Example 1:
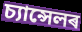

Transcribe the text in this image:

চ্যান্সেলৰ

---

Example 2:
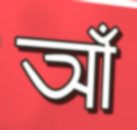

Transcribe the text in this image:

আঁ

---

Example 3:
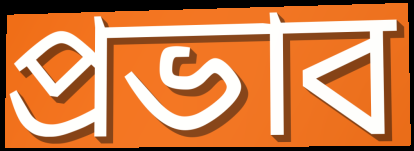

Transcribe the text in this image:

প্ৰভাব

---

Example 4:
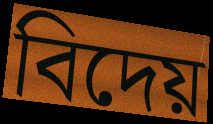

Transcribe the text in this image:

বিদেয়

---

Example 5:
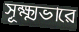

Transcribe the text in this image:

সূক্ষ্মভাৱে